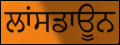
ਲਾਂਸਡਾਊਨ